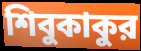
শিবুকাকুর